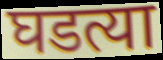
घडत्या